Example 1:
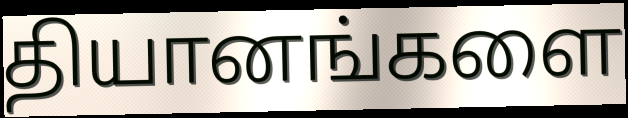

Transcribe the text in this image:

தியானங்களை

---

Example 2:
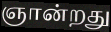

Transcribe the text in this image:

ஞான்றது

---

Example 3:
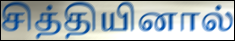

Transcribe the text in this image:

சித்தியினால்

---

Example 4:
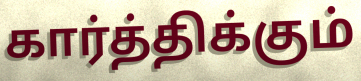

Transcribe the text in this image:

கார்த்திக்கும்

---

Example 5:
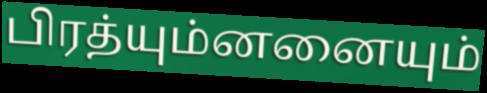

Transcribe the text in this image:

பிரத்யும்னனையும்